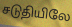
சடுதியிலே